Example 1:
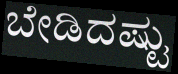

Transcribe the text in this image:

ಬೇಡಿದಷ್ಟು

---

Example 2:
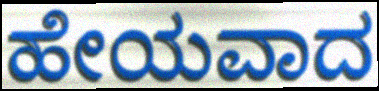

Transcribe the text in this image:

ಹೇಯವಾದ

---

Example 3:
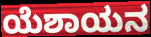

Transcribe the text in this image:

ಯೆಶಾಯನ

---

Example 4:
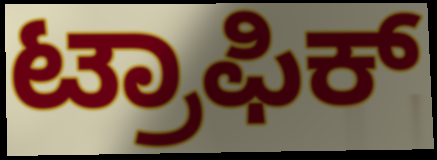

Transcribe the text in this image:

ಟ್ರಾಫಿಕ್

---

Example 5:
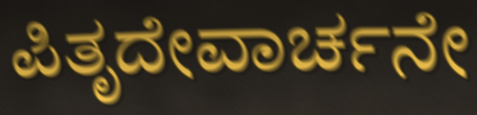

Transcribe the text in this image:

ಪಿತೃದೇವಾರ್ಚನೇ